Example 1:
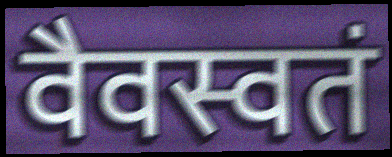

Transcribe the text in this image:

वैवस्वतं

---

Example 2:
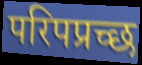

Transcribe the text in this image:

परिपप्रच्छ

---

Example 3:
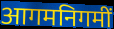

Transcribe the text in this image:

आगमनिगमीं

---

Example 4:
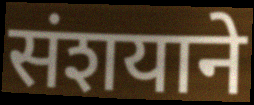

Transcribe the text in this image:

संशयाने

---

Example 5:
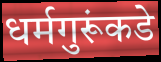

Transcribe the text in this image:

धर्मगुरूंकडे